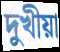
দুখীয়া